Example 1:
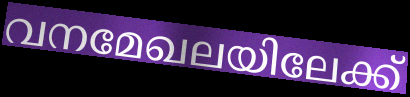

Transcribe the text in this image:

വനമേഖലയിലേക്ക്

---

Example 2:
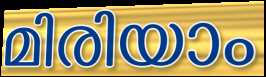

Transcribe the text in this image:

മിരിയാം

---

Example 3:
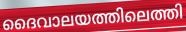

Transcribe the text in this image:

ദൈവാലയത്തിലെത്തി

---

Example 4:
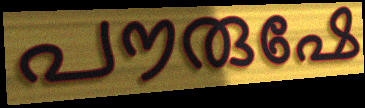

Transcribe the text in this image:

പൗരുഷേ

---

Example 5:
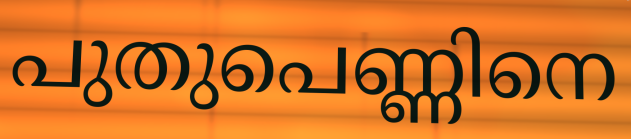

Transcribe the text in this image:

പുതുപെണ്ണിനെ